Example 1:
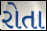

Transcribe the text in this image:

રોતા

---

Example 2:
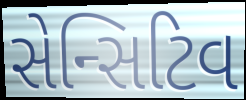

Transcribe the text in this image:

સેન્સિટિવ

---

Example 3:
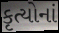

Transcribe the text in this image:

કૃત્યોનાં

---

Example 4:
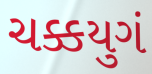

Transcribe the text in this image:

ચક્કયુગં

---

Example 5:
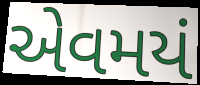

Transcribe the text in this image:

એવમયં